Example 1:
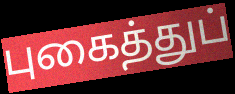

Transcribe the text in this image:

புகைத்துப்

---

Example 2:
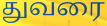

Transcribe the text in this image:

துவரை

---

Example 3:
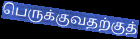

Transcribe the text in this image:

பெருக்குவதற்குத்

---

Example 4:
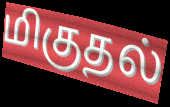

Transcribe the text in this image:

மிகுதல்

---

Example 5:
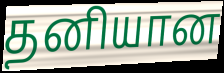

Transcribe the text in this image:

தனியான